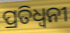
ପ୍ରତିଧ୍ଵନୀ